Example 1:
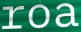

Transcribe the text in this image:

roa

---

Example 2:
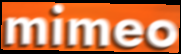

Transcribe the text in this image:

mimeo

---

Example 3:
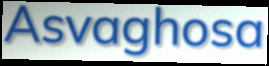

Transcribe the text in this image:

Asvaghosa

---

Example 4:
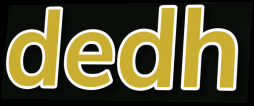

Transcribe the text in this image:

dedh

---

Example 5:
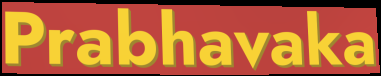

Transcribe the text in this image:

Prabhavaka